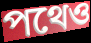
পথেও